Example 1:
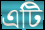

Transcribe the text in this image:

এটি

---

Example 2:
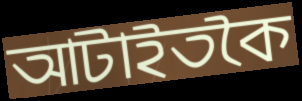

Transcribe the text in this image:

আটাইতকৈ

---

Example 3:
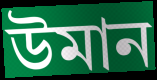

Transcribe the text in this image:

উমান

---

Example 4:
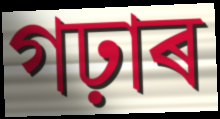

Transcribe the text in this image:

গঢ়াৰ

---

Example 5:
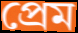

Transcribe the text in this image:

প্ৰেম